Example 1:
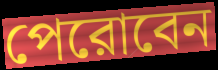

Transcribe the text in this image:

পেরোবেন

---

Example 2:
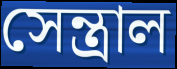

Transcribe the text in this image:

সেন্ত্রাল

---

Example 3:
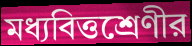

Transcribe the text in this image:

মধ্যবিত্তশ্রেণীর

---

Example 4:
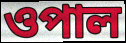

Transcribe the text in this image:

ওপাল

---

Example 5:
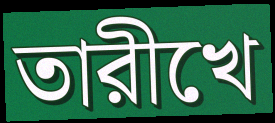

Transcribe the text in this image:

তারীখে